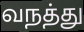
வநத்து